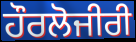
ਹੌਰਲੋਜੀਰੀ